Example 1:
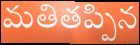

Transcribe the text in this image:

మతితప్పిన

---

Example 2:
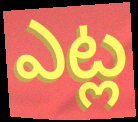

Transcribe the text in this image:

ఎట్ల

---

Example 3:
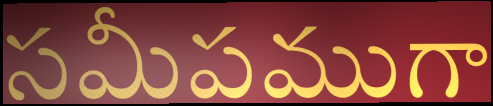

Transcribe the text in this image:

సమీపముగా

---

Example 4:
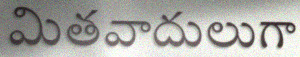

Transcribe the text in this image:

మితవాదులుగా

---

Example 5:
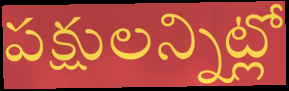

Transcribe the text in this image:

పక్షులన్నిట్లో